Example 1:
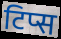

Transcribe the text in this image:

टिप्स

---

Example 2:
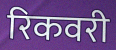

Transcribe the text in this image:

रिकवरी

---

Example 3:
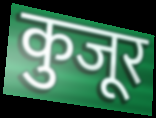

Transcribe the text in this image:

कुजूर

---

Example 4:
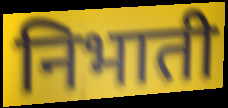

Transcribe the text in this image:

निभाती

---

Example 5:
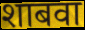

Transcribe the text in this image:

शाबवा